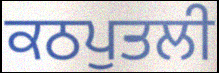
ਕਠਪੁਤਲੀ